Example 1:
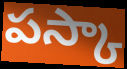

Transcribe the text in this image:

పస్కా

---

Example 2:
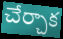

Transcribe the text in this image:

చేర్చాక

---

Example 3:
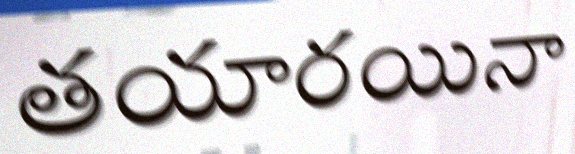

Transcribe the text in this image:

తయారయినా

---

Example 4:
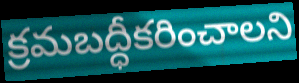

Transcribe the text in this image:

క్రమబద్ధీకరించాలని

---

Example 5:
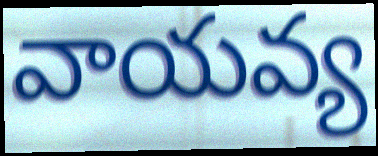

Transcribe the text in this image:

వాయవ్య